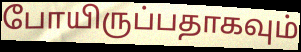
போயிருப்பதாகவும்